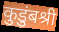
कुडुंबश्री